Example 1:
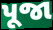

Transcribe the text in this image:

પૂજા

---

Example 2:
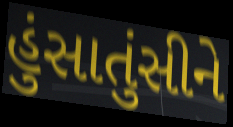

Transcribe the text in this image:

હુંસાતુંસીને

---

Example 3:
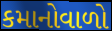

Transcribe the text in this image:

કમાનોવાળો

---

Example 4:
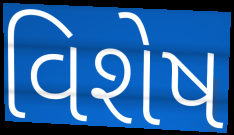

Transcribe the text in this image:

વિશેષ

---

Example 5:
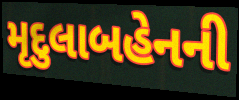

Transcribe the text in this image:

મૃદુલાબહેનની